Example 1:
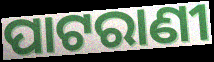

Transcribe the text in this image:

ପାଟରାଣୀ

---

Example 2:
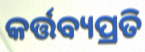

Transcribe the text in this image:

କର୍ତ୍ତବ୍ୟପ୍ରତି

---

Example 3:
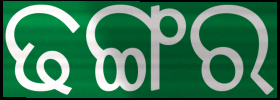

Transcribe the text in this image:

ଢଙ୍ଗର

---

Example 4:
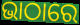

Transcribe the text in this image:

ଭାଠାରେ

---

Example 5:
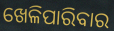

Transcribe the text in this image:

ଖେଳିପାରିବାର